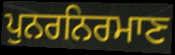
ਪੁਨਰਨਿਰਮਾਣ